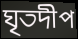
ঘৃতদীপ